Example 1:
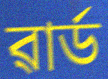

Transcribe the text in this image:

ৱাৰ্ড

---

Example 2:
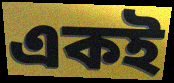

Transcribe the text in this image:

একই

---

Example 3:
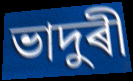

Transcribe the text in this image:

ভাদুৰী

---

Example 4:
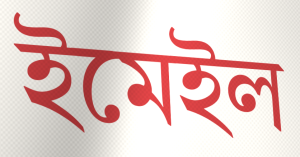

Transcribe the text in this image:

ইমেইল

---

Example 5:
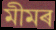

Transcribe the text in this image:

মীমৰ